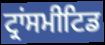
ਟ੍ਰਾਂਸਮੀਟਿਡ